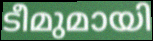
ടീമുമായി